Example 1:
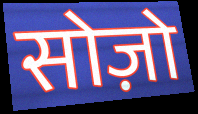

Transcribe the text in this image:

सोज़ो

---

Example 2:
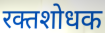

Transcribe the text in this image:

रक्तशोधक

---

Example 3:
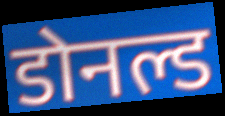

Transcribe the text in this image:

डोनल्‍ड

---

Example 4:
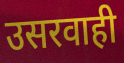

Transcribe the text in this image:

उसरवाही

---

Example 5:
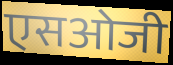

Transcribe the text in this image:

एसओजी